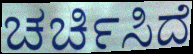
ಚರ್ಚಿಸಿದೆ